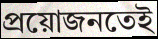
প্ৰয়োজনতেই